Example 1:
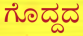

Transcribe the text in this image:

ಗೊದ್ದದ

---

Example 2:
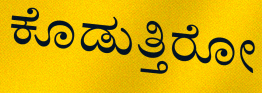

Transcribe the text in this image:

ಕೊಡುತ್ತಿರೋ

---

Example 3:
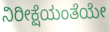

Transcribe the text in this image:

ನಿರೀಕ್ಷೆಯಂತೆಯೇ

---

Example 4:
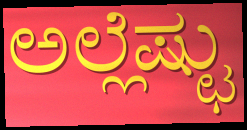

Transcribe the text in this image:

ಅಲ್ಲೆಷ್ಟು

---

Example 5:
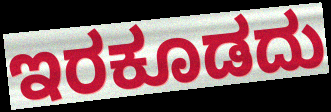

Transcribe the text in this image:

ಇರಕೂಡದು